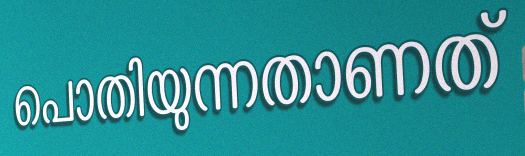
പൊതിയുന്നതാണത്